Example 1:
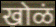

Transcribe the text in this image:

खोळं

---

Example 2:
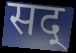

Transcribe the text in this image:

सद्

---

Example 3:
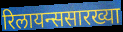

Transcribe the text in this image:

रिलायन्ससारख्या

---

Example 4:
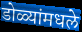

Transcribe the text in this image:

डोळ्यांमधले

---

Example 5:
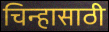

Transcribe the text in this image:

चिन्हासाठी